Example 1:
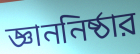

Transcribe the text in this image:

জ্ঞাননিষ্ঠার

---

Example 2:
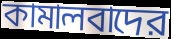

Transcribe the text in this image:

কামালবাদের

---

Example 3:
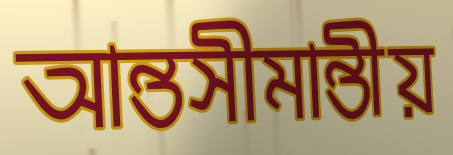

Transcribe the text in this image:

আন্তসীমান্তীয়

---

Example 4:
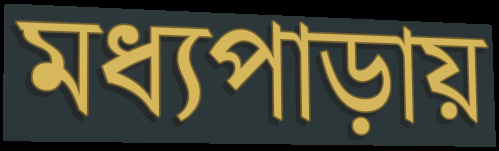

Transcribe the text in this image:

মধ্যপাড়ায়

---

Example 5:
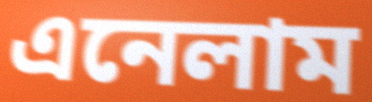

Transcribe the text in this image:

এনেলাম